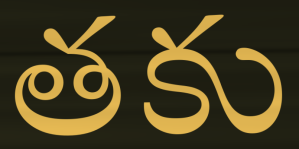
తకు